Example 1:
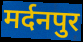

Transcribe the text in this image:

मर्दनपुर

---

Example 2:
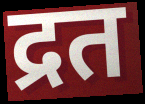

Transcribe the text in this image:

द्रत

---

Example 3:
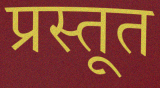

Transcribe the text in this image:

प्रस्तूत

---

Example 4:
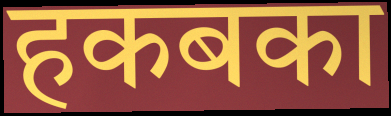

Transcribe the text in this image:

हकबका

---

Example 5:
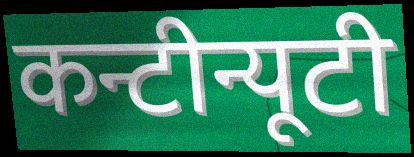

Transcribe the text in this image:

कन्टीन्यूटी